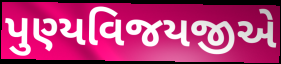
પુણ્યવિજયજીએ